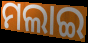
ମଲାଇ